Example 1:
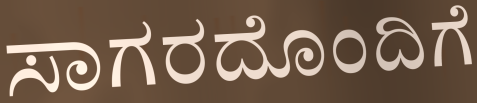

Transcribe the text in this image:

ಸಾಗರದೊಂದಿಗೆ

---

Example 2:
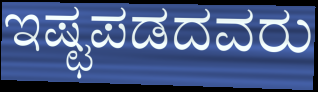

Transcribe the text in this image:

ಇಷ್ಟಪಡದವರು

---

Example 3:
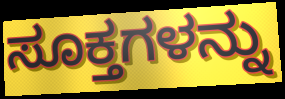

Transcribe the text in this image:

ಸೂಕ್ತಗಳನ್ನು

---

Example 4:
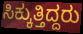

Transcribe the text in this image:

ಸಿಕ್ಕುತ್ತಿದ್ದರು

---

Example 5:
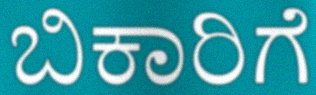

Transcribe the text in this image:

ಬಿಕಾರಿಗೆ